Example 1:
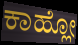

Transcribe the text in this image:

ಕಾಹ್ಲೋ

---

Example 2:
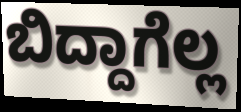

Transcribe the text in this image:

ಬಿದ್ದಾಗೆಲ್ಲ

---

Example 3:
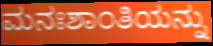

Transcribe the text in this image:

ಮನಃಶಾಂತಿಯನ್ನು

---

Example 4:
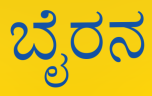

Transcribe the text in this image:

ಬೈರನ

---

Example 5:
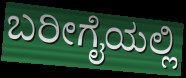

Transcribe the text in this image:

ಬರೀಗೈಯಲ್ಲಿ